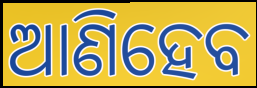
ଆଣିହେବ